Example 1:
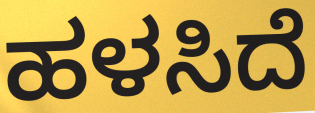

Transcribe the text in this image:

ಹಳಸಿದೆ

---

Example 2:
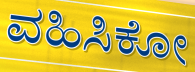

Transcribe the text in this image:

ವಹಿಸಿಕೋ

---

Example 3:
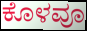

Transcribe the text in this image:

ಕೊಳವೂ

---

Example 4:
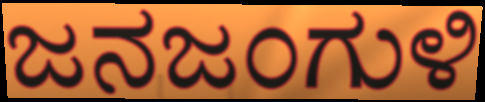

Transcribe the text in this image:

ಜನಜಂಗುಳಿ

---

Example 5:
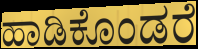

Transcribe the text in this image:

ಹಾಡಿಕೊಂಡರೆ